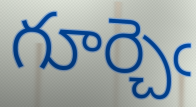
గూర్చెఁ